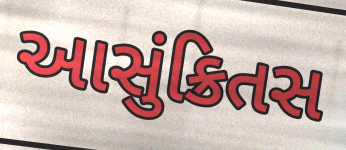
આસુંક્રિતસ